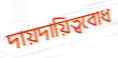
দায়দায়িত্ববোধ